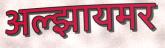
अल्झायमर